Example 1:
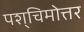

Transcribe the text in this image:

पश्चिमोत्तर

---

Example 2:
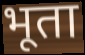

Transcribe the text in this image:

भूता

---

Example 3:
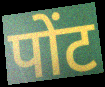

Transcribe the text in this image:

पोंट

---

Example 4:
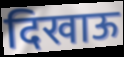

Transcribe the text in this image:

दिखाऊ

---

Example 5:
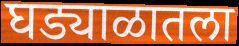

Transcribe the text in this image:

घड्याळातला